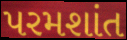
પરમશાંત